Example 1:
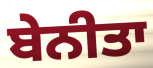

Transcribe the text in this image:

ਬੇਨੀਤਾ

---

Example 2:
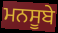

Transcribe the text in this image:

ਮਨਸੂਬੇ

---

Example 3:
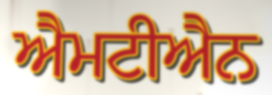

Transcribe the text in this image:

ਐਮਟੀਐਨ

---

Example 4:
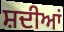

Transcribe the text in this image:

ਸ਼ਦੀਆਂ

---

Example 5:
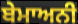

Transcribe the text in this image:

ਬੇਮਾਅਨੀ